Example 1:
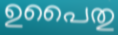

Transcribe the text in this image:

ഉപൈതു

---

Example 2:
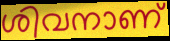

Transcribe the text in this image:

ശിവനാണ്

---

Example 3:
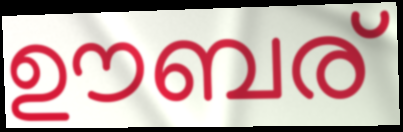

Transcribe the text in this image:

ഊബര്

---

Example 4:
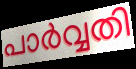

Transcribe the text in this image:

പാർവ്വതി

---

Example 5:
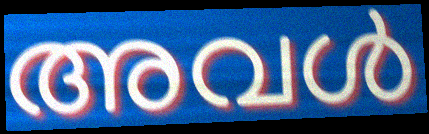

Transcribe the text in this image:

അവൾ